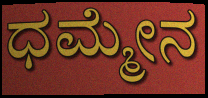
ಧಮ್ಮೇನ